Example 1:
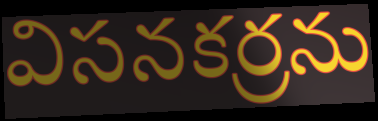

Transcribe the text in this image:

విసనకర్రను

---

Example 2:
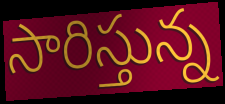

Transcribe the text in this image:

సారిస్తున్న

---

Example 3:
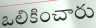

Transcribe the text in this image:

ఒలికించారు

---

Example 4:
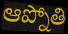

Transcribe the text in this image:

ఆప్నోతి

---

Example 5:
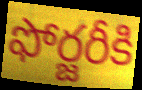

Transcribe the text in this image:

ఫోర్జరీకి